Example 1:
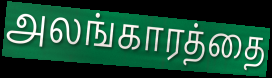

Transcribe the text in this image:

அலங்காரத்தை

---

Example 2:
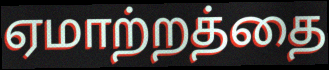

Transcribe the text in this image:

ஏமாற்றத்தை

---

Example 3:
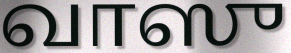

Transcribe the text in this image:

வாஸு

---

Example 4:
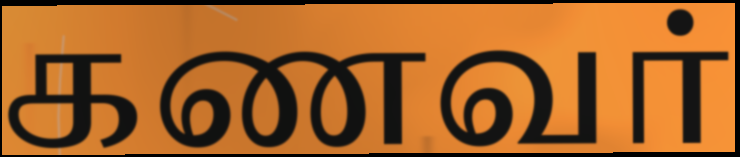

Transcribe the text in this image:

கணவர்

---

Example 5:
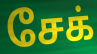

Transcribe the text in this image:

சேக்